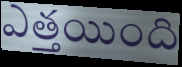
ఎత్తయింది